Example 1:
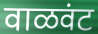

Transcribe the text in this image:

वाळवंट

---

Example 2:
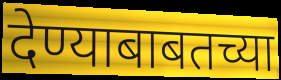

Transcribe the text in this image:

देण्याबाबतच्या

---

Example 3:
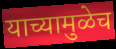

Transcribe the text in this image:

याच्यामुळेच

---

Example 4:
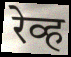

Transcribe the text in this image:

रेव्ह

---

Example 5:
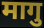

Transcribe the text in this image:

मागु